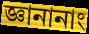
জ্ঞানানাং